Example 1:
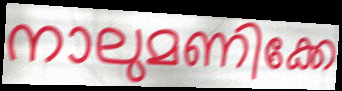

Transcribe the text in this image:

നാലുമണിക്കേ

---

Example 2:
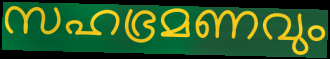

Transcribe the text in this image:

സഹഭ്രമണവും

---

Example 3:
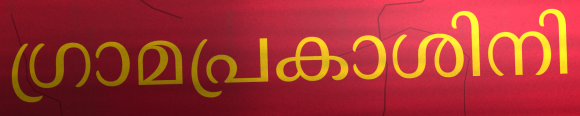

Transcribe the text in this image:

ഗ്രാമപ്രകാശിനി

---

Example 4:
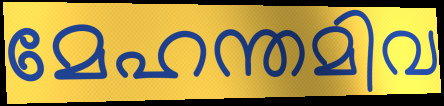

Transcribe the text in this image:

മേഹന്തമിവ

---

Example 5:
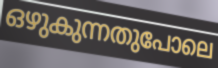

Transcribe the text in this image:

ഒഴുകുന്നതുപോലെ